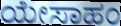
ಯೇಸಾಹಂ